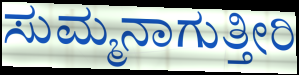
ಸುಮ್ಮನಾಗುತ್ತೀರಿ